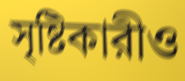
সৃষ্টিকারীও